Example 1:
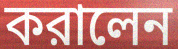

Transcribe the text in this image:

করালেন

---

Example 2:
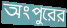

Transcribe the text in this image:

অংপুরের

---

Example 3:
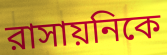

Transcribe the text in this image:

রাসায়নিকে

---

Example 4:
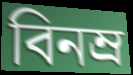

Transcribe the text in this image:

বিনম্র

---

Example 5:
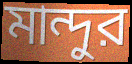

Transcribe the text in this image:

মান্দুর